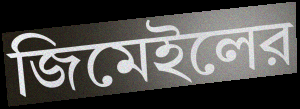
জিমেইলের